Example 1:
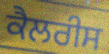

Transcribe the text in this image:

ਕੈਲਰੀਸ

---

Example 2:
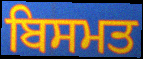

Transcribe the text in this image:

ਬਿਸਮਤ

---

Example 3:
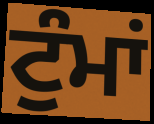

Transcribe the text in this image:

ਟੁੰਮਾਂ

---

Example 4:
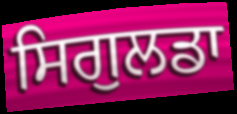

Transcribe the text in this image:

ਸਿਗੁਲਡਾ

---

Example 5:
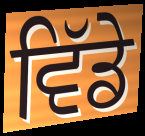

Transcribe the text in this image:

ਵਿੱਡੇ